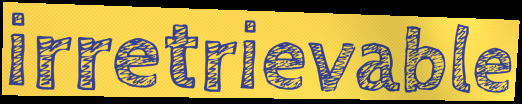
irretrievable